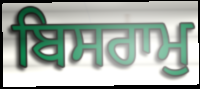
ਬਿਸਰਾਮੁ